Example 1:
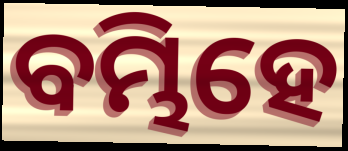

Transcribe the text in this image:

ବମ୍ଭିହେ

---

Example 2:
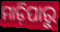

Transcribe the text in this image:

ମାଡ଼ିପାରୁ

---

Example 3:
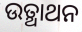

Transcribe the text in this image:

ଉତ୍ଥାଥନ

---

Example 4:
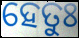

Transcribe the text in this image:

ହେତୁଃ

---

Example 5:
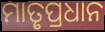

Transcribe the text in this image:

ମାତୃପ୍ରଧାନ